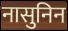
नासुनिन